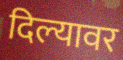
दिल्यावर